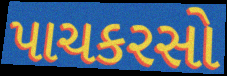
પાચકરસો